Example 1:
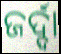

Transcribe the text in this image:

ଜର୍ଦ୍ଦା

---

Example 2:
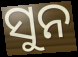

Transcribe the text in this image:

ସୁନ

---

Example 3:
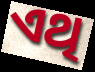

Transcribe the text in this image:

ଏଥି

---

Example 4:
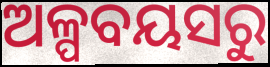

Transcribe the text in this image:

ଅଳ୍ପବୟସରୁ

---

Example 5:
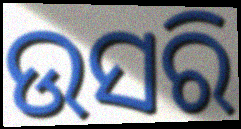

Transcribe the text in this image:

ଉସରି